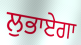
ਲੁਭਾਏਗਾ